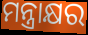
ମନ୍ତ୍ରାକ୍ଷର